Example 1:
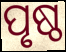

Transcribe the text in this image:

ପୃଷ୍ଠ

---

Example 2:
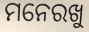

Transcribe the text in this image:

ମନେରଖୁ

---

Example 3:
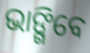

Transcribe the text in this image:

ଭାଙ୍ଗିବେ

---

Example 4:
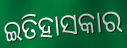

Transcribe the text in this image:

ଇତିହାସକାର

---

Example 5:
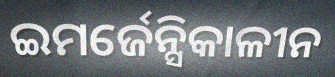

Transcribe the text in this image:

ଇମର୍ଜେନ୍ସିକାଳୀନ